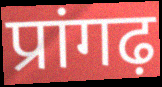
प्रांगढ़